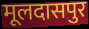
मूलदासपुर